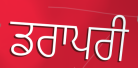
ਡਰਾਪਰੀ